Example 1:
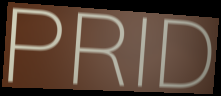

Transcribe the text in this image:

PRID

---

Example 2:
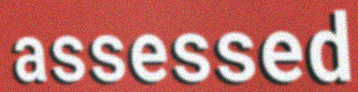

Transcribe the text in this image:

assessed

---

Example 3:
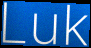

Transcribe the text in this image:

Luk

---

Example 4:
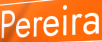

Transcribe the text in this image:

Pereira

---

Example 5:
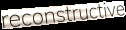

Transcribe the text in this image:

reconstructive